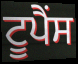
ਟੂਪੈਂਸ